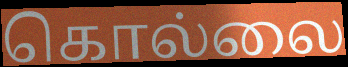
கொல்லை